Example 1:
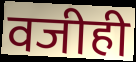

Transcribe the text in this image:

वजीही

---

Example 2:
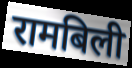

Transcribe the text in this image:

रामबिली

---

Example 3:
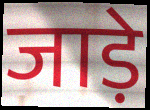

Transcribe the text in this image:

जाड़े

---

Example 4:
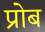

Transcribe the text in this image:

प्रोब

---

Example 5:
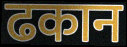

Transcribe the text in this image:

ढकान